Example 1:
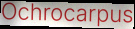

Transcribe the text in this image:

Ochrocarpus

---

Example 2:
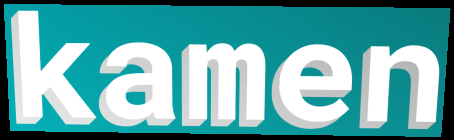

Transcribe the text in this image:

kamen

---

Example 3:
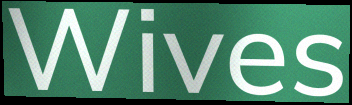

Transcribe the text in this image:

Wives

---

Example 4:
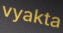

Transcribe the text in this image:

vyakta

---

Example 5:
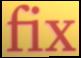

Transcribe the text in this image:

fix